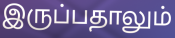
இருப்பதாலும்